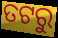
ତଟରୁ